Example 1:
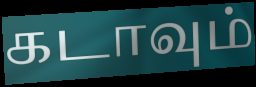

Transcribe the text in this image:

கடாவும்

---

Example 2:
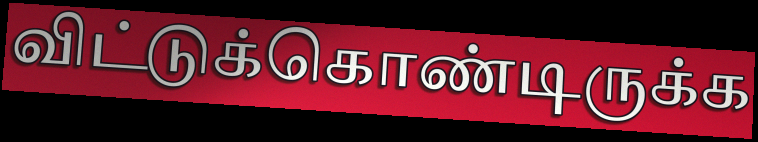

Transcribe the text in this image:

விட்டுக்கொண்டிருக்க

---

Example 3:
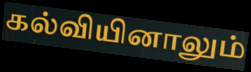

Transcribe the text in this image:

கல்வியினாலும்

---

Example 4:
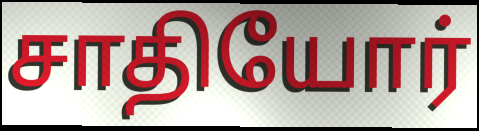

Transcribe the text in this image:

சாதியோர்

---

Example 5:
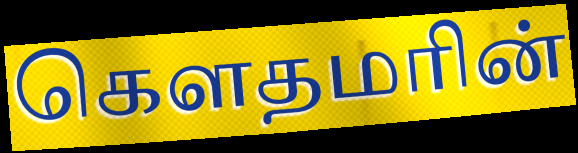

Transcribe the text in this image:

கௌதமரின்